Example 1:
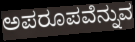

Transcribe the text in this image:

ಅಪರೂಪವೆನ್ನುವ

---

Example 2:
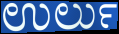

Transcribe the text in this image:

ಉರ್ಲು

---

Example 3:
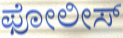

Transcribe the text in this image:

ಫೋಲೀಸ್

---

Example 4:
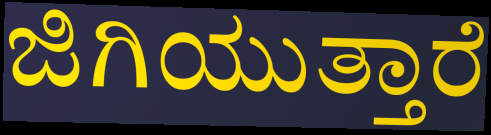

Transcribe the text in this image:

ಜಿಗಿಯುತ್ತಾರೆ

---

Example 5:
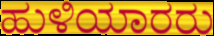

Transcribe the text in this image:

ಹುಳಿಯಾರರು